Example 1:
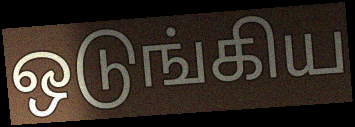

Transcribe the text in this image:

ஒடுங்கிய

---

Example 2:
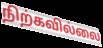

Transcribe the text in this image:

நிற்கவில்லை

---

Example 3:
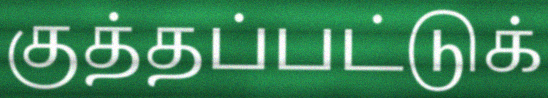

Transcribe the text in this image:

குத்தப்பட்டுக்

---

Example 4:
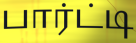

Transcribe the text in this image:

பார்ட்டி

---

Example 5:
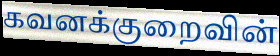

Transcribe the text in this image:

கவனக்குறைவின்